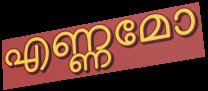
എണ്ണമോ